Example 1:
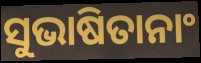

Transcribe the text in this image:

ସୁଭାଷିତାନାଂ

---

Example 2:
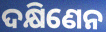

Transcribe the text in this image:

ଦକ୍ଷିଣେନ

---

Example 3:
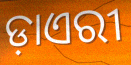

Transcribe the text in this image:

ଡ଼ାଏରୀ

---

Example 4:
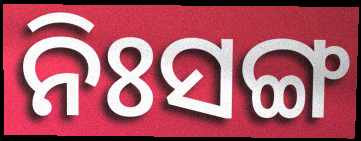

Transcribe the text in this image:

ନିଃସଙ୍ଗ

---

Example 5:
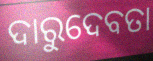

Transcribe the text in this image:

ଦାରୁଦେବତା